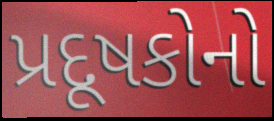
પ્રદૂષકોનો